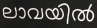
ലാവയിൽ